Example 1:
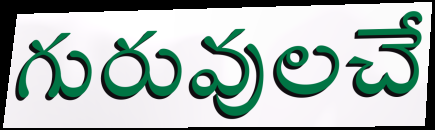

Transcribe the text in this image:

గురువులచే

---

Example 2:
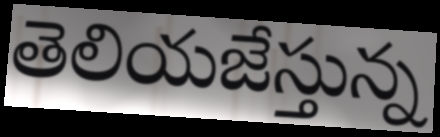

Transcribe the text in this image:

తెలియజేస్తున్న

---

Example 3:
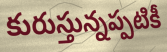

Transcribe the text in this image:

కురుస్తున్నప్పటికీ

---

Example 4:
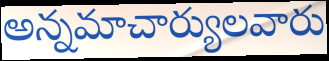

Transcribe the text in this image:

అన్నమాచార్యులవారు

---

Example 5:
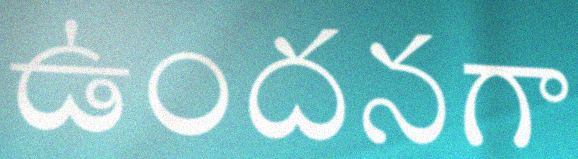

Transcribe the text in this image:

ఉందనగా